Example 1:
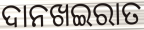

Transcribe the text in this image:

ଦାନଖଇରାତ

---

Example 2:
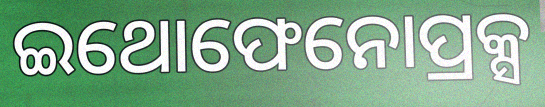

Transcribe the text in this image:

ଇଥୋଫେନୋପ୍ରକ୍ସ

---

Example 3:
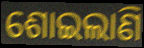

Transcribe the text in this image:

ଶୋଇଲାଣି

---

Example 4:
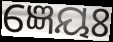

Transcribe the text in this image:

ଜ୍ଞେୟଃ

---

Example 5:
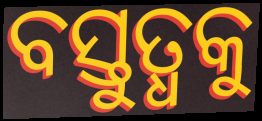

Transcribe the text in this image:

ବସ୍ତୁତ୍ଧକୁ